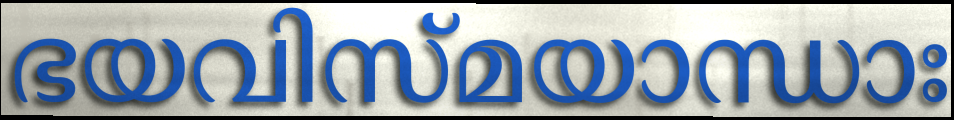
ഭയവിസ്മയാന്ധാഃ